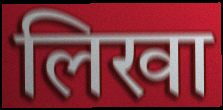
लिखा